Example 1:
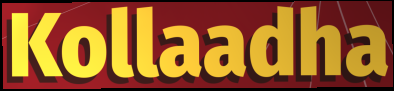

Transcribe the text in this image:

Kollaadha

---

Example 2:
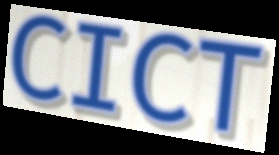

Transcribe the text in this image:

CICT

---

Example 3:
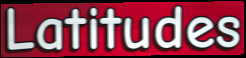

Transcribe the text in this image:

Latitudes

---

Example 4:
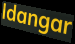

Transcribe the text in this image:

Idangar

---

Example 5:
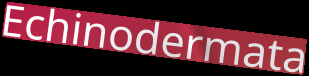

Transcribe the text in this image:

Echinodermata